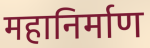
महानिर्माण